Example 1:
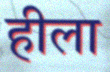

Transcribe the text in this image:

हीला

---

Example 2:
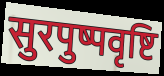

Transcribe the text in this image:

सुरपुष्पवृष्टि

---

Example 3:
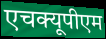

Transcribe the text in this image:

एचक्यूपीएम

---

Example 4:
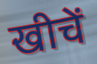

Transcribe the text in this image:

खीचें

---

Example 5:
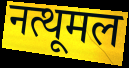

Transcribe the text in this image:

नत्थूमल